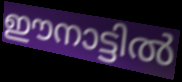
ഈനാട്ടിൽ